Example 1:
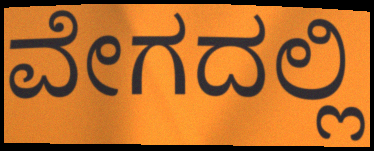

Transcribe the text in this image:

ವೇಗದಲ್ಲಿ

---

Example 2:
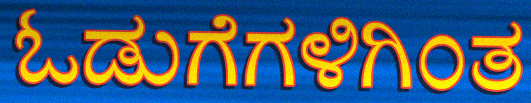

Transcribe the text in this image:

ಓಡುಗೆಗಳಿಗಿಂತ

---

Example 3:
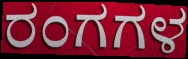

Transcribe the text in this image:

ರಂಗಗಳ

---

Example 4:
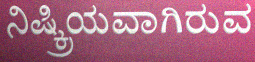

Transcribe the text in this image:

ನಿಷ್ಕ್ರಿಯವಾಗಿರುವ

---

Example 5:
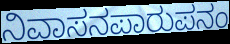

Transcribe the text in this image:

ನಿವಾಸನಪಾರುಪನಂ